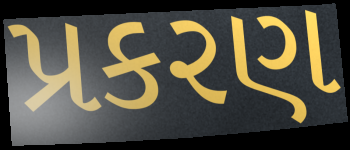
પ્રકરણ